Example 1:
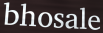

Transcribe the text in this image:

bhosale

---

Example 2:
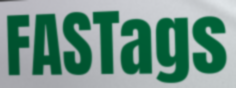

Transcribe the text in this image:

FASTags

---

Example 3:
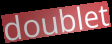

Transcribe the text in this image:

doublet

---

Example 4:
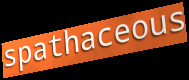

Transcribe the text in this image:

spathaceous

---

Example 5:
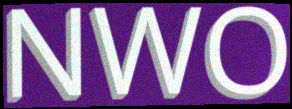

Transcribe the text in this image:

NWO